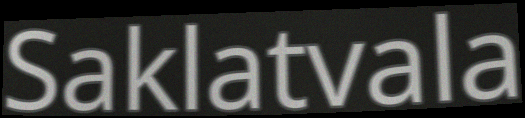
Saklatvala